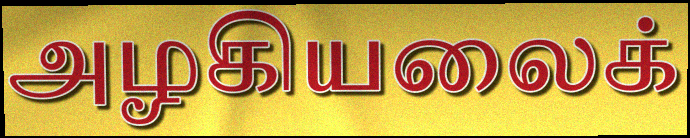
அழகியலைக்